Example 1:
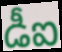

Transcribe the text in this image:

డీఐ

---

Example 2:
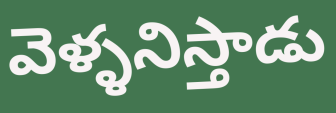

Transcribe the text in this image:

వెళ్ళనిస్తాడు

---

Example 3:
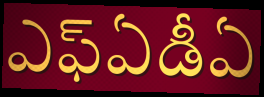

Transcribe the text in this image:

ఎఫ్ఏడీఏ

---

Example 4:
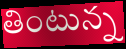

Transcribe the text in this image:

తింటున్న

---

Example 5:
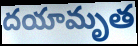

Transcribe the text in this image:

దయామృత